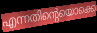
എന്നതിന്റെയൊക്കെ